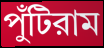
পুঁটিরাম